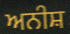
ਅਨੀਸ਼